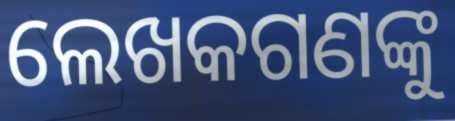
ଲେଖକଗଣଙ୍କୁ